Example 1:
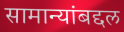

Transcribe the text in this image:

सामान्यांबद्दल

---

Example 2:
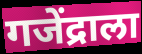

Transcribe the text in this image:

गजेंद्राला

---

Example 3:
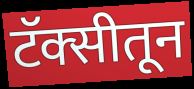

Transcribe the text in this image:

टॅक्‍सीतून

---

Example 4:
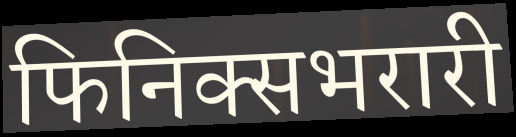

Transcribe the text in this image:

फिनिक्सभरारी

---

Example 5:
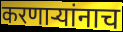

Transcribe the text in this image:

करणार्‍यांनाच